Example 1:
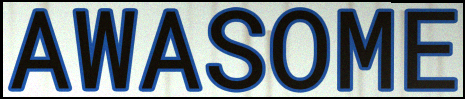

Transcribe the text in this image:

AWASOME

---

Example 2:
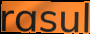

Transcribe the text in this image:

rasul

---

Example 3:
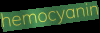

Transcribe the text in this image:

hemocyanin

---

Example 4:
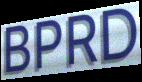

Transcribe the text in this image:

BPRD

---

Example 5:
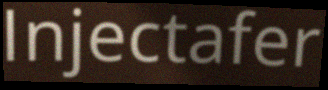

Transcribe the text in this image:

Injectafer